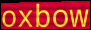
oxbow